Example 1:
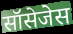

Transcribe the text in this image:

सॉसेजेस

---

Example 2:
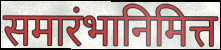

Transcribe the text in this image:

समारंभानिमित्त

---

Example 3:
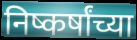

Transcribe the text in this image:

निष्कर्षांच्या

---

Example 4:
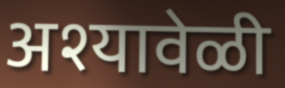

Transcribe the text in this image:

अश्यावेळी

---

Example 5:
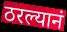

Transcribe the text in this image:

ठरल्यानं